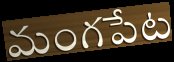
మంగపేట